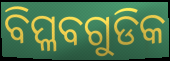
ବିପ୍ଳବଗୁଡିକ